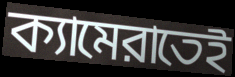
ক্যামেরাতেই